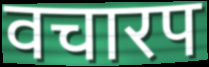
वचारप